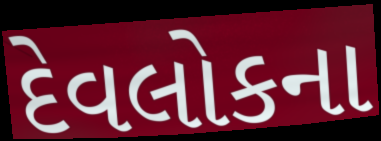
દેવલોકના